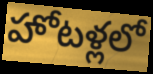
హోటళ్లలో